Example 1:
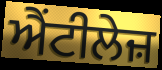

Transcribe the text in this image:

ਐਂਟੀਲੇਜ਼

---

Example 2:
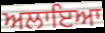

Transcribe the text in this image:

ਅਲਾਇਆ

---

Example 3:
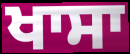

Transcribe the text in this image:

ਖਾਸਾ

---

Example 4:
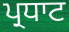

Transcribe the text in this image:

ਪ੍ਰਧਾਟ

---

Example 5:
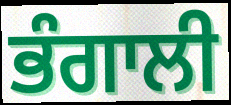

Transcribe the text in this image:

ਭੰਗਾਲੀ